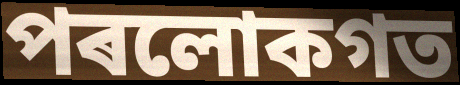
পৰলোকগত